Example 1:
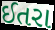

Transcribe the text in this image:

ઈતરા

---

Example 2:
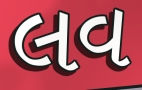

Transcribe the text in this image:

લવ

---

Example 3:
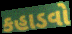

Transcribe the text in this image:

કહાડવો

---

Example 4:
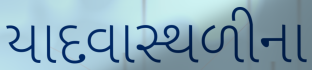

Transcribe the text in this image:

યાદવાસ્થળીના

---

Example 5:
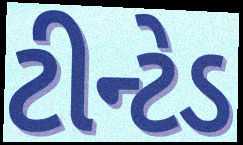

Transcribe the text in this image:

ટીન્ટેડ